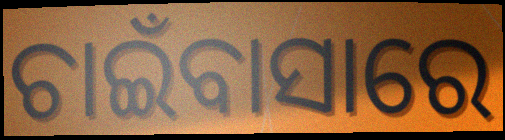
ଚାଇଁବାସାରେ